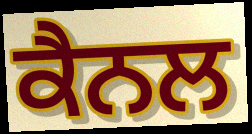
ਕੈਨਲ